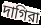
দাগিরা